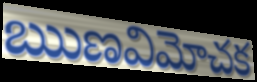
ఋణవిమోచక